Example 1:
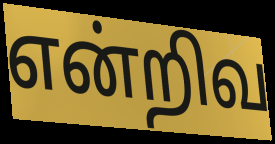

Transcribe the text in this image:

என்றிவ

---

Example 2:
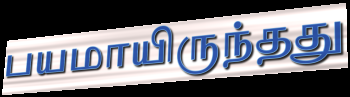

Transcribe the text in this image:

பயமாயிருந்தது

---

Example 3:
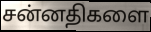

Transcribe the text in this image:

சன்னதிகளை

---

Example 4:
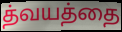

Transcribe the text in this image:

த்வயத்தை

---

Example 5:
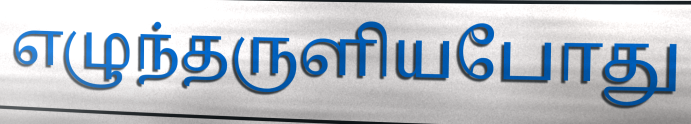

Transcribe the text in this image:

எழுந்தருளியபோது